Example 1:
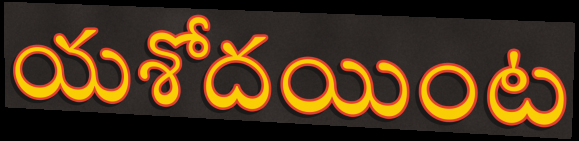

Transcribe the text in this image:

యశోదయింట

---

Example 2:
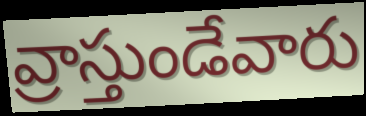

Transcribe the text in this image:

వ్రాస్తుండేవారు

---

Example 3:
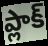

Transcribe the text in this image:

ప్లాక్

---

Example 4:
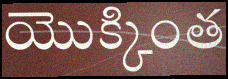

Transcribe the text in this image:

యొక్కింత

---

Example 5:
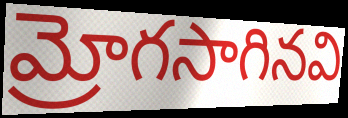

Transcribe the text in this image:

మ్రోగసాగినవి